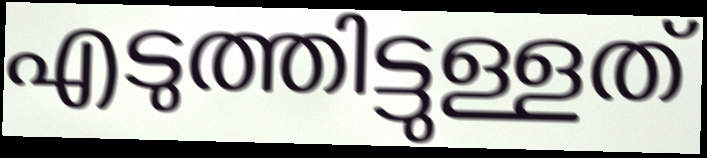
എടുത്തിട്ടുള്ളത്